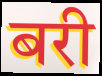
बरी